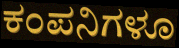
ಕಂಪನಿಗಳೂ